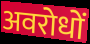
अवरोधों